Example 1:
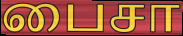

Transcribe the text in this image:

பைசா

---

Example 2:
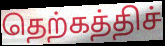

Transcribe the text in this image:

தெற்கத்திச்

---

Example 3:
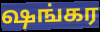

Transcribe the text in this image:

ஷங்கர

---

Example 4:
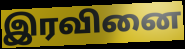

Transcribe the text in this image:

இரவினை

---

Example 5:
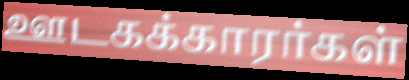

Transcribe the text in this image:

ஊடகக்காரர்கள்